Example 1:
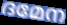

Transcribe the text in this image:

ദമേന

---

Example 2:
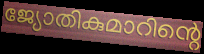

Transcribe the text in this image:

ജ്യോതികുമാറിന്റെ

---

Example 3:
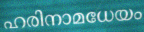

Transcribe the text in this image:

ഹരിനാമധേയം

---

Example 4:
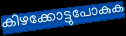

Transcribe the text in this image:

കിഴക്കോട്ടുപോകുക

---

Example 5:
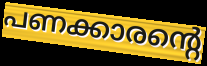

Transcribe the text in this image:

പണക്കാരന്റെ